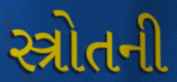
સ્ત્રોતની